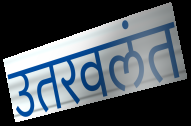
उतरवलंत